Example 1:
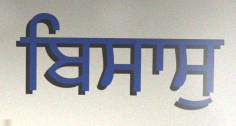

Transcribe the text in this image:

ਬਿਸਾਸੁ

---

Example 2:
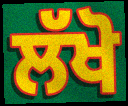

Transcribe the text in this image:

ਲੱਖੋ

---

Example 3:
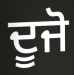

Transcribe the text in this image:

ਦੂਜੋ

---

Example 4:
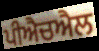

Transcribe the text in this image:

ਪੀਐਚਐਲ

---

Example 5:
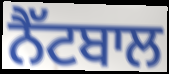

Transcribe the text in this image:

ਨੈੱਟਬਾਲ